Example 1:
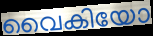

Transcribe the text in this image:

വൈകിയോ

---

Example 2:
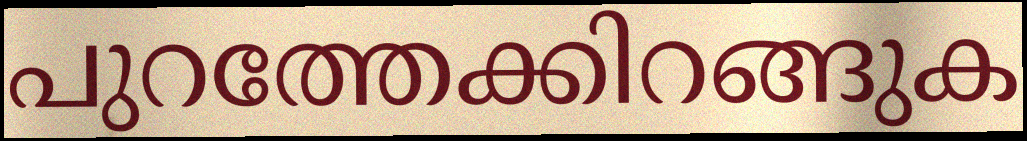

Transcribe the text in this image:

പുറത്തേക്കിറങ്ങുക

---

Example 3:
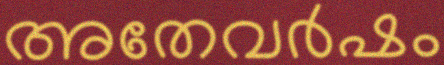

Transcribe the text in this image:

അതേവർഷം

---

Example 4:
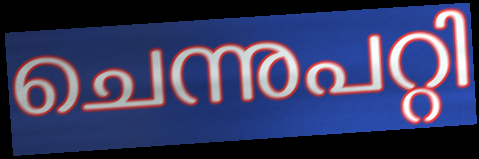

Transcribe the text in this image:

ചെന്നുപറ്റി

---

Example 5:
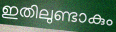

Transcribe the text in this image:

ഇതിലുണ്ടാകും